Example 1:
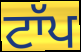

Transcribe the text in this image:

ਟਾੱਪ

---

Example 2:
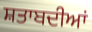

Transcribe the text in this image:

ਸ਼ਤਾਬਦੀਆਂ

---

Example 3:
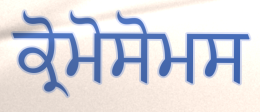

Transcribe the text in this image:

ਕ੍ਰੋਮੋਸੋਮਸ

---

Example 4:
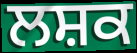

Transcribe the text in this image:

ਲਸ਼ਕ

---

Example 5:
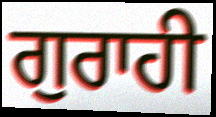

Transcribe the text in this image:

ਗੁਰਾਹੀ